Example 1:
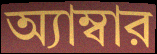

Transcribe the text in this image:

অ্যাম্বার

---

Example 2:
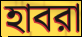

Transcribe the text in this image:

হাবরা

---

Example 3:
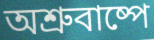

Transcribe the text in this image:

অশ্রুবাষ্পে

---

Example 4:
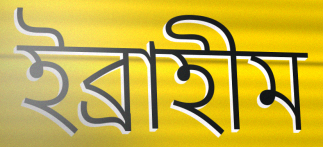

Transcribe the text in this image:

ইব্রাহীম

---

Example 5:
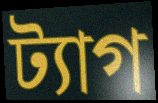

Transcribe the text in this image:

ট্যাগ